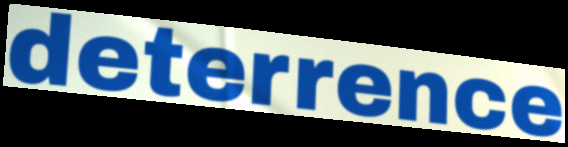
deterrence